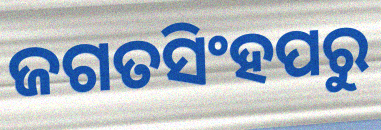
ଜଗତସିଂହପରୁ